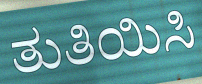
ತುತಿಯಿಸಿ